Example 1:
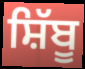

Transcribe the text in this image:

ਸ਼ਿੱਬੂ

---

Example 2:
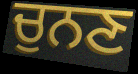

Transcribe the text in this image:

ਚੁਨਣ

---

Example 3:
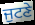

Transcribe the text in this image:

ਜੁਟਣੇ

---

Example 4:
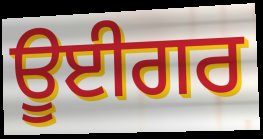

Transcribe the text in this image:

ਊਈਗਰ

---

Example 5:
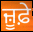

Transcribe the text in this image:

ਜ਼ੂਫ਼ੇ